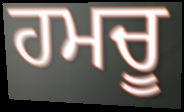
ਹਮਚੂ